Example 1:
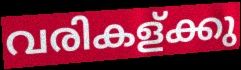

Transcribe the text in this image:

വരികള്ക്കു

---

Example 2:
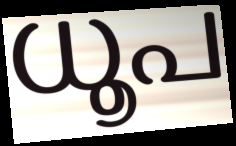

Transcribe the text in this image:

ധൂപ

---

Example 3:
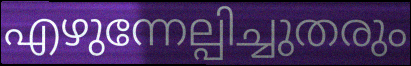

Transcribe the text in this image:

എഴുന്നേല്പിച്ചുതരും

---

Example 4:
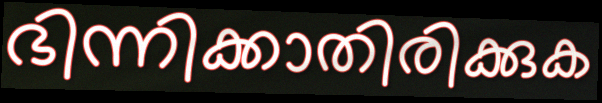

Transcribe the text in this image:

ഭിന്നിക്കാതിരിക്കുക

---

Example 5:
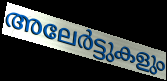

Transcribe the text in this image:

അലേർട്ടുകളും